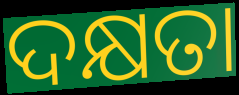
ଦକ୍ଷତା